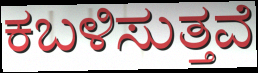
ಕಬಳಿಸುತ್ತವೆ